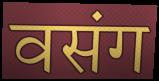
वसंग